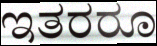
ಇತರರೂ